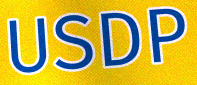
USDP